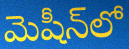
మెషీన్‌లో